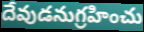
దేవుడనుగ్రహించు